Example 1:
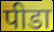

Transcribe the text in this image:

पीडा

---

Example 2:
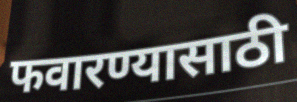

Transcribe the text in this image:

फवारण्यासाठी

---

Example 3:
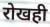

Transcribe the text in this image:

रोखही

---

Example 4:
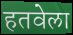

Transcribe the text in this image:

हतवेला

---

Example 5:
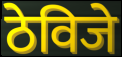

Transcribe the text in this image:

ठेविजे